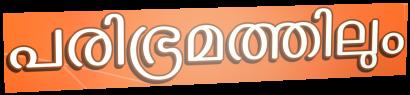
പരിഭ്രമത്തിലും